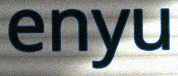
enyu